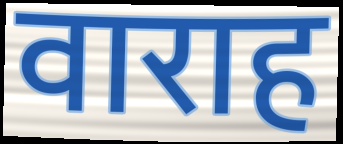
वाराह